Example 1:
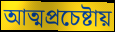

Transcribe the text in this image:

আত্মপ্রচেষ্টায়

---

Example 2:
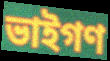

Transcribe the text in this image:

ভাইগণ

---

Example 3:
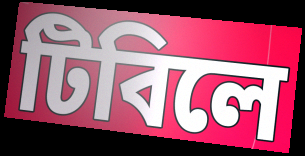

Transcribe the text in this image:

টিবিলে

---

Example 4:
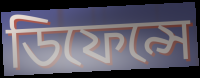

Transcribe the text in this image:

ডিফেন্সে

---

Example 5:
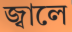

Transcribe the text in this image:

জ্বালে